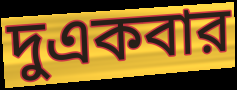
দুএকবার